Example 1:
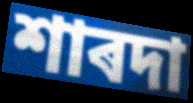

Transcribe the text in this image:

শাৰদা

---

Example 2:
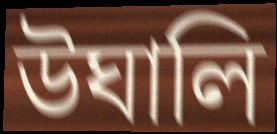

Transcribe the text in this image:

উঘালি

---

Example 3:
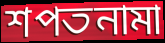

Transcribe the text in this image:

শপতনামা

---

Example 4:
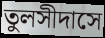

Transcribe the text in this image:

তুলসীদাসে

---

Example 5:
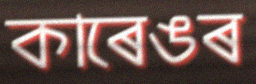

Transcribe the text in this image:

কাৰেঙৰ